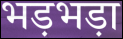
भड़भड़ा